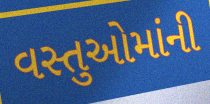
વસ્તુઓમાંની